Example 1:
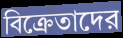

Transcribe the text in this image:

বিক্রেতাদের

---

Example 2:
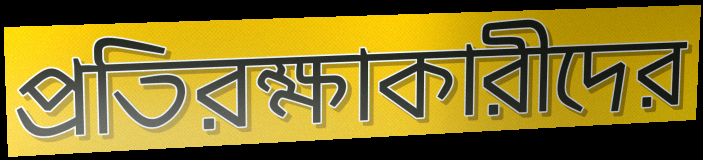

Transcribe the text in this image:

প্রতিরক্ষাকারীদের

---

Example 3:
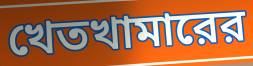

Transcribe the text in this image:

খেতখামারের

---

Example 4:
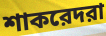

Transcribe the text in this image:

শাকরেদরা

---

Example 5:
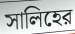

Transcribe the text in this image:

সালিহের